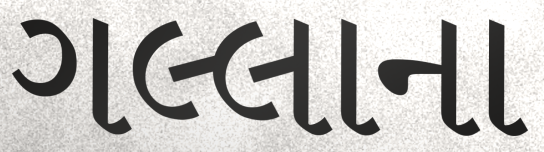
ગલ્લાના